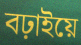
বঢ়াইয়ে